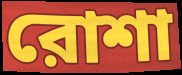
রোশা